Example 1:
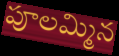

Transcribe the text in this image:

పూలమ్మిన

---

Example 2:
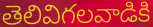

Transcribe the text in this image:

తెలివిగలవాడికి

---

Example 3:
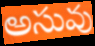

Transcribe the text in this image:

అసువు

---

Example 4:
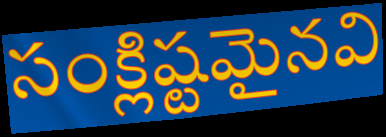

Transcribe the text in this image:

సంక్లిష్టమైనవి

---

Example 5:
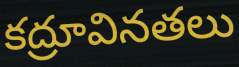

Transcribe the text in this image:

కద్రూవినతలు